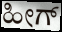
ಹೀಗ್